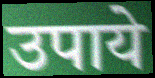
उपाये